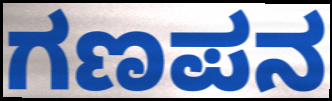
ಗಣಪನ